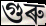
গুৰু